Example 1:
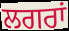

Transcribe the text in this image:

ਲਗਰਾਂ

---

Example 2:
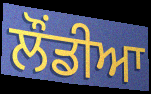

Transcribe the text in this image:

ਲੌਂਡੀਆ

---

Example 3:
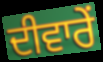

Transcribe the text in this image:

ਦੀਵਾਰੇਂ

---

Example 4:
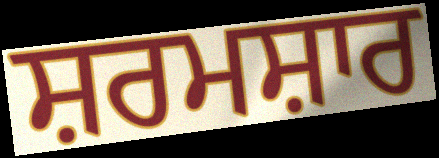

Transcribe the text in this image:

ਸ਼ਰਮਸ਼ਾਰ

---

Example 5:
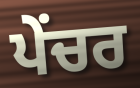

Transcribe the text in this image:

ਪੇਂਚਰ